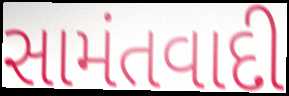
સામંતવાદી